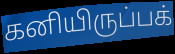
கனியிருப்பக்